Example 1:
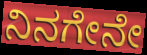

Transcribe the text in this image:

ನಿನಗೇನೇ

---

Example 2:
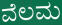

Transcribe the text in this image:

ವೆಲಮ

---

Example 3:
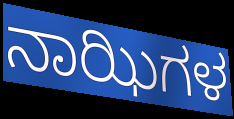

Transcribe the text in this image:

ನಾಝಿಗಳ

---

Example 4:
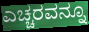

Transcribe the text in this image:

ಎಚ್ಚರವನ್ನೂ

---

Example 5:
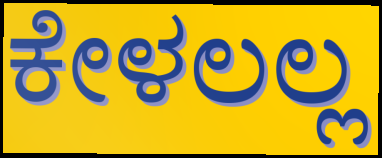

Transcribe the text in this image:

ಕೇಳಲಲ್ಲ